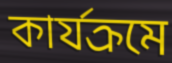
কার্যক্রমে